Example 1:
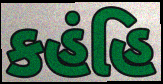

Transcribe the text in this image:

કહંહિ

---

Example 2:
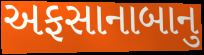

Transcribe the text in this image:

અફસાનાબાનુ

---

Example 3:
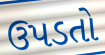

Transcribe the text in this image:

ઉપડતો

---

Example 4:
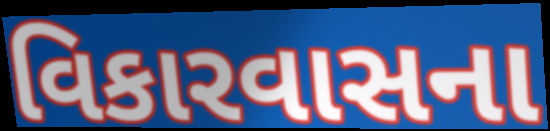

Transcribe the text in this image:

વિકારવાસના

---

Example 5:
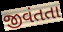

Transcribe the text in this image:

જીવંતતા